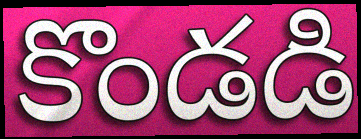
కొండడి